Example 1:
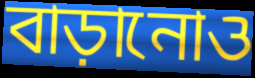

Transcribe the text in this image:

বাড়ানোও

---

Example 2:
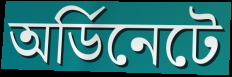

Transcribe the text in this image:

অর্ডিনেটে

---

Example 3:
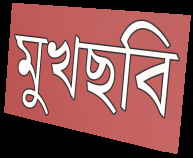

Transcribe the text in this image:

মুখছবি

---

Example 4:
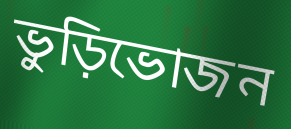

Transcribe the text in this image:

ভুড়িভোজন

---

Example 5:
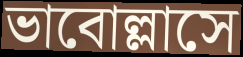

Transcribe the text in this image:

ভাবোল্লাসে